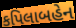
કપિલાબહેન